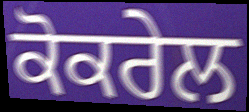
ਕੋਕਰੇਲ